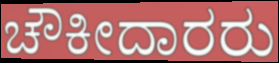
ಚೌಕೀದಾರರು